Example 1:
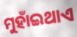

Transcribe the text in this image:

ମୁହାଁଇଥାଏ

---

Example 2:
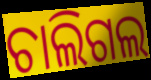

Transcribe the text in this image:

ଚାଲିଗଲ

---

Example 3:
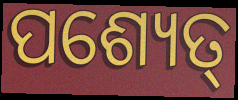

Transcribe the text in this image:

ପଶ୍ୟେତ୍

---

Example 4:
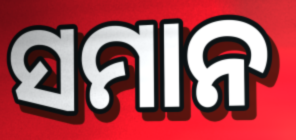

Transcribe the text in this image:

ସମାନ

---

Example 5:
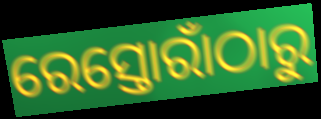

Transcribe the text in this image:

ରେସ୍ତୋରାଁଠାରୁ